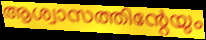
ആശ്വാസത്തിന്റേയും